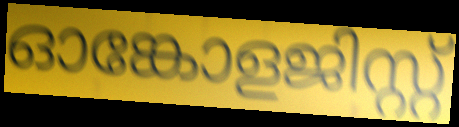
ഓങ്കോളജിസ്റ്റ്